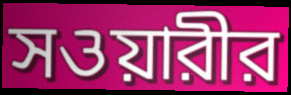
সওয়ারীর